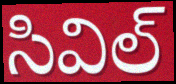
సివిల్